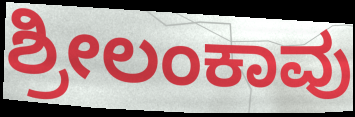
ಶ್ರೀಲಂಕಾವು